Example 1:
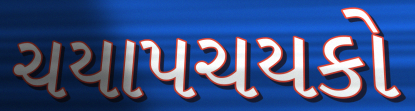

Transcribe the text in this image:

ચયાપચયકો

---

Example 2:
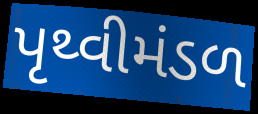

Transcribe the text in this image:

પૃથ્વીમંડળ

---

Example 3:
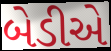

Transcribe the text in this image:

બેડીએ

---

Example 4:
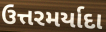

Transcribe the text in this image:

ઉત્તરમર્યાદા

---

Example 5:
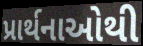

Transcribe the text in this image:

પ્રાર્થનાઓથી